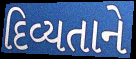
દિવ્યતાને